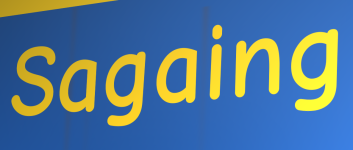
Sagaing